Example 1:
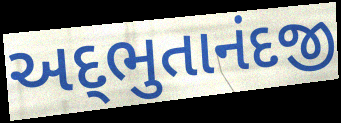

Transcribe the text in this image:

અદ્‌ભુતાનંદજી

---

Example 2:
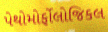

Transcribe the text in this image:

પેથોમોર્ફોલોજિકલ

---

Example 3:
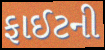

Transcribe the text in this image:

ફાઈટની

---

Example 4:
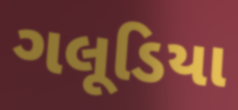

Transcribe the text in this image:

ગલૂડિયા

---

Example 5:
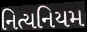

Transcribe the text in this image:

નિત્યનિયમ